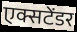
एक्सटेंडर